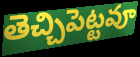
తెచ్చిపెట్టవూ